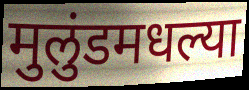
मुलुंडमधल्या